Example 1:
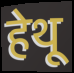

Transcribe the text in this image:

हेथू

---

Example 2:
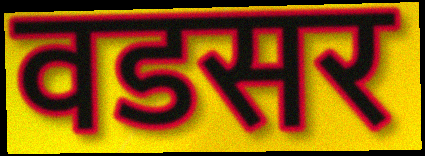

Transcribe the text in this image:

वडसर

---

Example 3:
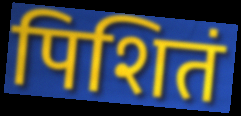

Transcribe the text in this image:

पिशितं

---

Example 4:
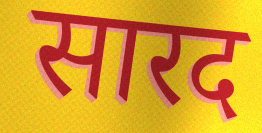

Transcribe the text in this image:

सारद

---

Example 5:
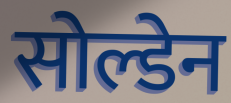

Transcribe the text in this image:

सोल्डेन